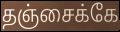
தஞ்சைக்கே